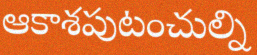
ఆకాశపుటంచుల్ని